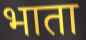
भाता